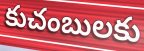
కుచంబులకు